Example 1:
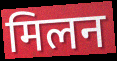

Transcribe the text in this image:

मिलन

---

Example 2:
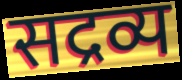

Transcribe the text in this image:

सद्रव्य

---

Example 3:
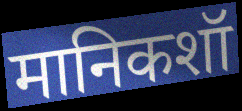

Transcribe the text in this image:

मानिकशॉ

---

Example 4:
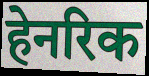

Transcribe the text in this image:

हेनरिक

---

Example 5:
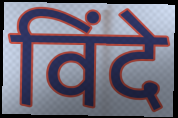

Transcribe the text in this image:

विंदे